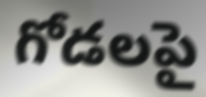
గోడలపై